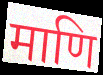
माणि